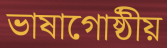
ভাষাগোষ্ঠীয়